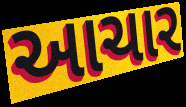
આચાર